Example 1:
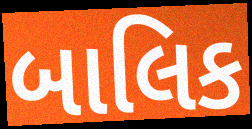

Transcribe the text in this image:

બાલિક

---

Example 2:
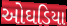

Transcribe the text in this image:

ઓઘડિયા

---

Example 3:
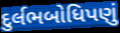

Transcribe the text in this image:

દુર્લભબોધિપણું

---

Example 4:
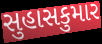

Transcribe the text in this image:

સુહાસકુમાર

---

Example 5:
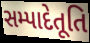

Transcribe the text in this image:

સમ્પાદેતૂતિ